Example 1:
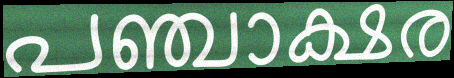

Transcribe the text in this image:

പഞ്ചാക്ഷര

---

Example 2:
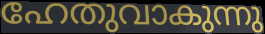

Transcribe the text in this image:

ഹേതുവാകുന്നു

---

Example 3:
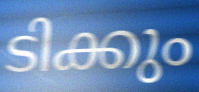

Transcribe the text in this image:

ടിക്കും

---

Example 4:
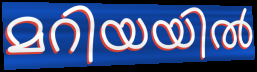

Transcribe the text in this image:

മറിയയിൽ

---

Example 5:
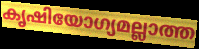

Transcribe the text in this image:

കൃഷിയോഗ്യമല്ലാത്ത